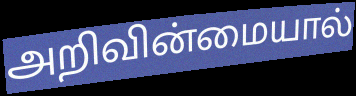
அறிவின்மையால்